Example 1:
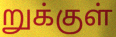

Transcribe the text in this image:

றுக்குள்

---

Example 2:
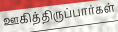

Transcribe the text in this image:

ஊகித்திருப்பார்கள்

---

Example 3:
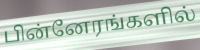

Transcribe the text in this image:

பின்னேரங்களில்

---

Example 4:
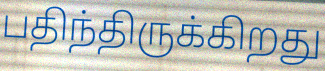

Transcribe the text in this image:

பதிந்திருக்கிறது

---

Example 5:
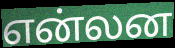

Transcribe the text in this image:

என்லன